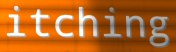
itching